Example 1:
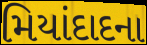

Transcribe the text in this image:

મિયાંદાદના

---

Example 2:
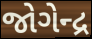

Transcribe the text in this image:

જોગેન્દ્ર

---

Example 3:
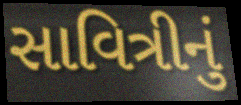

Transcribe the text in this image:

સાવિત્રીનું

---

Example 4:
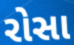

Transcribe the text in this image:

રોસા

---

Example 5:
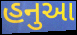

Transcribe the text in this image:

હનુઆ